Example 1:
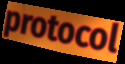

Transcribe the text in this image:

protocol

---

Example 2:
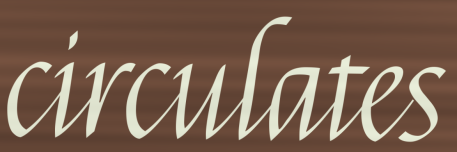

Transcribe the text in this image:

circulates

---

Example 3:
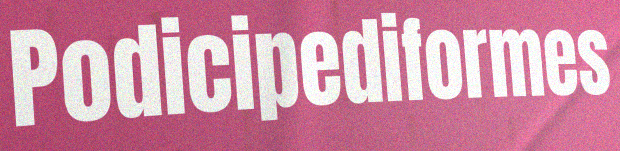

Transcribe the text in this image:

Podicipediformes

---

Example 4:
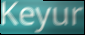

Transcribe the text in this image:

Keyur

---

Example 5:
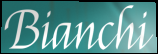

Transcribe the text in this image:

Bianchi